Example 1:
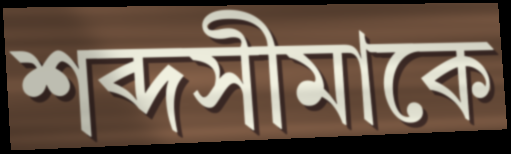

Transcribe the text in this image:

শব্দসীমাকে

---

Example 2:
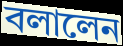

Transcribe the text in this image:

বলালেন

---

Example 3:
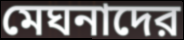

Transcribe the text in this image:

মেঘনাদের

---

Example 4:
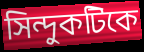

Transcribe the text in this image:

সিন্দুকটিকে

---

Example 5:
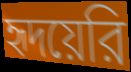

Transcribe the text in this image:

হৃদয়েরি